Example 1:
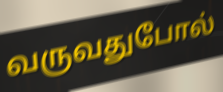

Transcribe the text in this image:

வருவதுபோல்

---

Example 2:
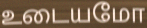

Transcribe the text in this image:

உடையமோ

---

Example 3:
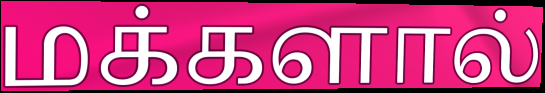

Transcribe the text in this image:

மக்களால்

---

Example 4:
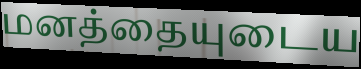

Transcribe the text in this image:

மனத்தையுடைய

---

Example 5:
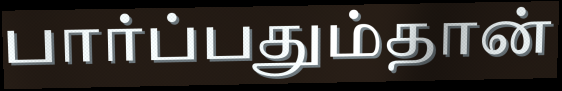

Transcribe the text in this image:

பார்ப்பதும்தான்